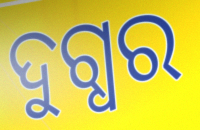
ଦୁଗ୍ଧର